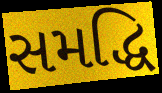
સમદ્ધિ